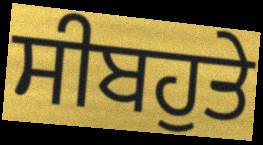
ਸੀਬਹੁਤੇ